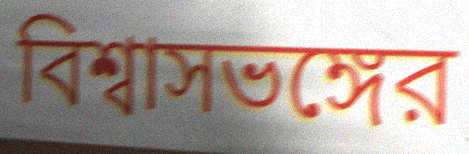
বিশ্বাসভঙ্গের